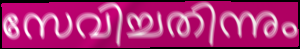
സേവിച്ചതിന്നും